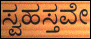
ಸ್ವಹಸ್ತವೇ